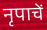
नृपाचें